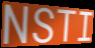
NSTI